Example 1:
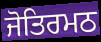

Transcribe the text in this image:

ਜੋਤਿਰਮਠ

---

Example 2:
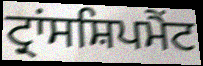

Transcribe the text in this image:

ਟ੍ਰਾਂਸਸ਼ਿਪਮੈਂਟ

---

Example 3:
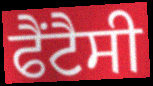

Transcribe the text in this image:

ਫੈਂਟੈਸੀ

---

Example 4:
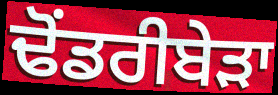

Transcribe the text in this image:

ਢੋਂਡਰੀਬੇੜਾ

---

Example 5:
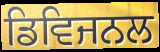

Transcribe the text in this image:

ਡਿਵਿਜਨਲ